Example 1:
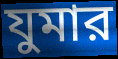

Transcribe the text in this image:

যুমার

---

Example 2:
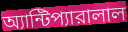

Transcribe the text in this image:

অ্যান্টিপ্যারালাল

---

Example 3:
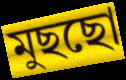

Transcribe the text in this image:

মুছছো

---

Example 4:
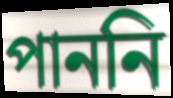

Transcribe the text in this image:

পাননি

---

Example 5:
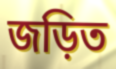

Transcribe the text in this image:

জড়িত